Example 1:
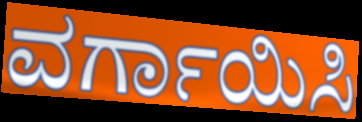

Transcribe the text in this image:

ವರ್ಗಾಯಿಸಿ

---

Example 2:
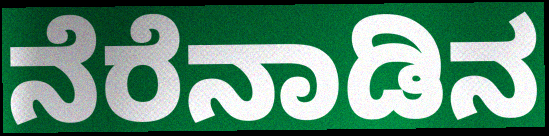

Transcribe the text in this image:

ನೆರೆನಾಡಿನ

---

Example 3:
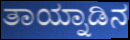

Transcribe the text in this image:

ತಾಯ್ನಾಡಿನ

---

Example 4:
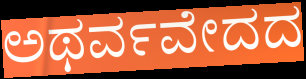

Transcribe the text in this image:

ಅಥರ್ವವೇದದ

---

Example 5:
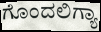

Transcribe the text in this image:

ಗೊಂದಲಿಗ್ಯಾ